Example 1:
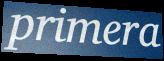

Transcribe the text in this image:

primera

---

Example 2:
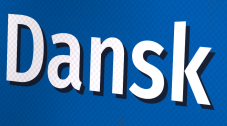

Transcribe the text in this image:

Dansk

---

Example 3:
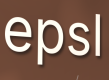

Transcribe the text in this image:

epsl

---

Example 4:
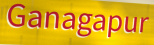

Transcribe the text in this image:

Ganagapur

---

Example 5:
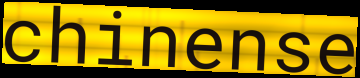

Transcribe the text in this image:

chinense